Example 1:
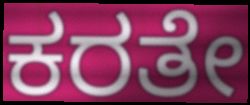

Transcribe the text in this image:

ಕರತೇ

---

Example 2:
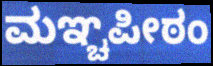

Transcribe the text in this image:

ಮಞ್ಚಪೀಠಂ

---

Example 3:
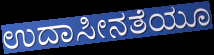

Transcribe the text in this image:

ಉದಾಸೀನತೆಯೂ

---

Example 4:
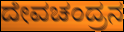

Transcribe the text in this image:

ದೇವಚಂದ್ರನ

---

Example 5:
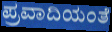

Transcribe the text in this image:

ಪ್ರವಾದಿಯಂತೆ